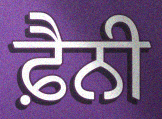
ਫ਼ੈਨੀ